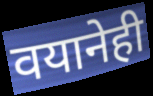
वयानेही